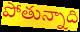
పోతున్నాది